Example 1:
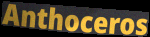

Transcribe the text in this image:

Anthoceros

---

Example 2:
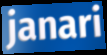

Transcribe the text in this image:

janari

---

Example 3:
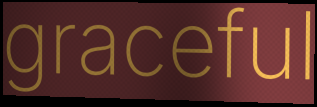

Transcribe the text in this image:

graceful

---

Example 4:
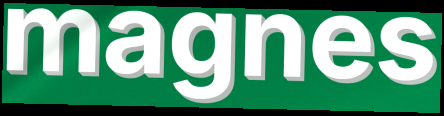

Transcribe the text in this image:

magnes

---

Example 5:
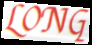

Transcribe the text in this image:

LONG